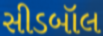
સીડબૉલ